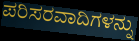
ಪರಿಸರವಾದಿಗಳನ್ನು